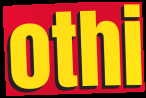
othi